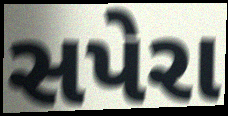
સપેરા